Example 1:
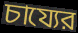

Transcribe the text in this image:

চায্যের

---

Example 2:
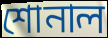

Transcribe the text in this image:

শোনাল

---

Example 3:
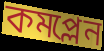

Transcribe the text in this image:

কমপ্লেন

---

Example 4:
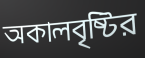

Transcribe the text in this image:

অকালবৃষ্টির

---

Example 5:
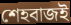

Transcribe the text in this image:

শেহবাজই